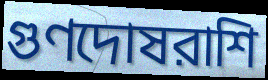
গুণদোষরাশি